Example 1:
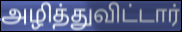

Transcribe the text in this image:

அழித்துவிட்டார்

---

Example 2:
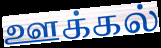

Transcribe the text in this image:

ஊக்கல்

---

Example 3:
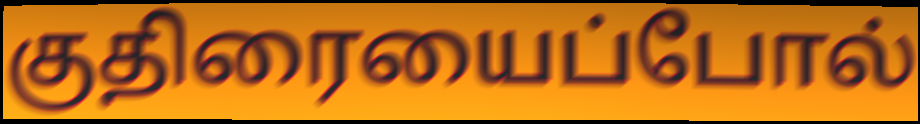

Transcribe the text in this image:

குதிரையைப்போல்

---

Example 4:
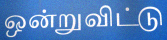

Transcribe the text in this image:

ஒன்றுவிட்டு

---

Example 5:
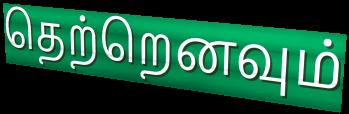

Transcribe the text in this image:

தெற்றெனவும்